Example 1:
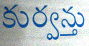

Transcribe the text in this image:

కుర్వన్తు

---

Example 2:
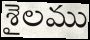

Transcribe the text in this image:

శైలము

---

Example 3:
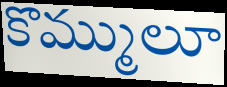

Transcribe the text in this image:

కొమ్ములూ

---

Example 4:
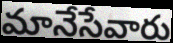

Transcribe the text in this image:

మానేసేవారు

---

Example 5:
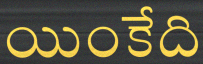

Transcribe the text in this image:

యింకేది